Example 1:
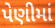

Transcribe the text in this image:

પેણીમાં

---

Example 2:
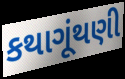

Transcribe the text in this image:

કથાગૂંથણી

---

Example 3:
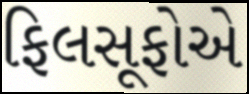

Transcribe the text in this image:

ફિલસૂફોએ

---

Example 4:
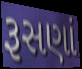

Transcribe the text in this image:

રૂસણાં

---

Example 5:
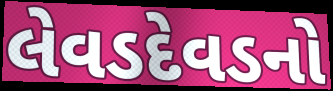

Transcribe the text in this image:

લેવડદેવડનો